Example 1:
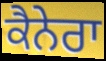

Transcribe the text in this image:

ਕੈਨੇਰਾ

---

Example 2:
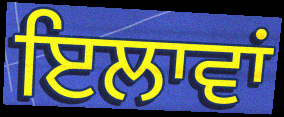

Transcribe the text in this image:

ਇਲਾਵਾਂ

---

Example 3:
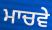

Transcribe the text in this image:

ਮਾਚਵੇ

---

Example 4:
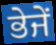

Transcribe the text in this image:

ਭੇਜੇਂ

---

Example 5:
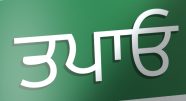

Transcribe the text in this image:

ਤਪਾਓ